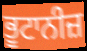
ਭੂਟਾਨੀਜ਼